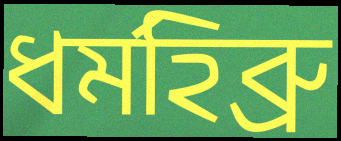
ধৰ্মহিব্ৰু